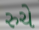
રુચે